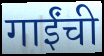
गाईंची